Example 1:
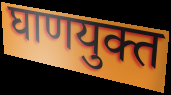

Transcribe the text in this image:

घाणयुक्त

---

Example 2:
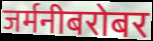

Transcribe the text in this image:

जर्मनीबरोबर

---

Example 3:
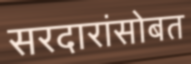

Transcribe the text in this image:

सरदारांसोबत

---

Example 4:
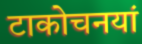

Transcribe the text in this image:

टाकोचनयां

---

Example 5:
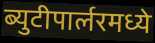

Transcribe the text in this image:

ब्युटीपार्लरमध्ये